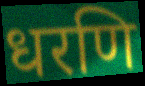
धरणि